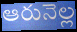
ఆరునెల్ల